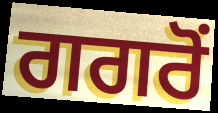
ਗਗਰੋਂ